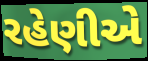
રહેણીએ